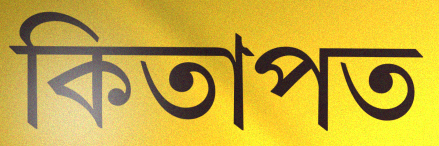
কিতাপত